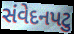
સંવેદનપટુ